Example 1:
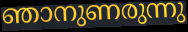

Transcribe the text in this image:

ഞാനുണരുന്നു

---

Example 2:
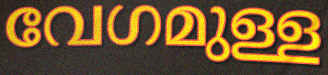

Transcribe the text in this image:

വേഗമുള്ള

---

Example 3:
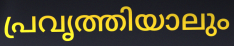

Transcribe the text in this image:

പ്രവൃത്തിയാലും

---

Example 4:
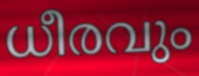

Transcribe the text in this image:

ധീരവും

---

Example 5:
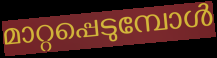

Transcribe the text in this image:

മാറ്റപ്പെടുമ്പോൾ